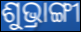
ଶୁଭ୍ରାଙ୍ଗୀ